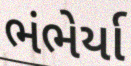
ભંભેર્યા